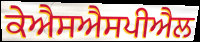
ਕੇਐਸਐਸਪੀਐਲ